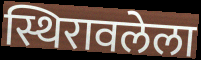
स्थिरावलेला